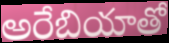
అరేబియాతో